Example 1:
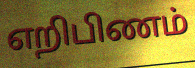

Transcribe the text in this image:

எறிபிணம்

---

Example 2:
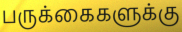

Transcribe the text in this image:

பருக்கைகளுக்கு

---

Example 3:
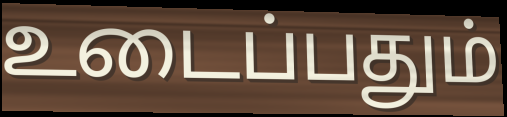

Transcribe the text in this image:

உடைப்பதும்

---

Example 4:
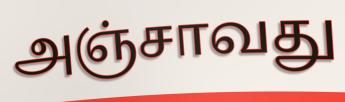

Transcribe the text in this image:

அஞ்சாவது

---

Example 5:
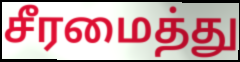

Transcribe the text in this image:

சீரமைத்து